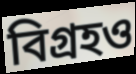
বিগ্রহও